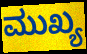
ಮುಖ್ಯ